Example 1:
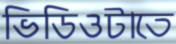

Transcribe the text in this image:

ভিডিওটাতে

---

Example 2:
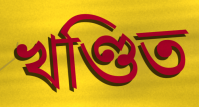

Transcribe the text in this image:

খণ্ডিত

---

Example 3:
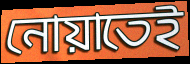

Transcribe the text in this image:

নোয়াতেই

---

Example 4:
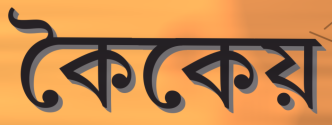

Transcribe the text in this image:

কৈকেয়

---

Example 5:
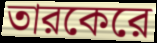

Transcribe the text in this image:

তারকেরে